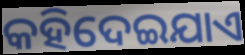
କହିଦେଇଯାଏ